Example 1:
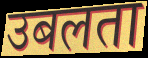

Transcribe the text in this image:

उबलता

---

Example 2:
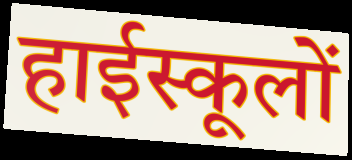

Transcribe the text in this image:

हाईस्कूलों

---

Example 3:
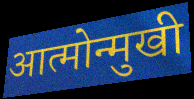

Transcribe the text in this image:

आत्मोन्मुखी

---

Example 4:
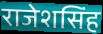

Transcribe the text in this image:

राजेशसिंह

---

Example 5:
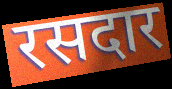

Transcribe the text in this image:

रसदार